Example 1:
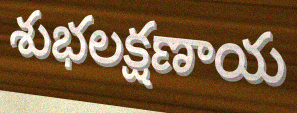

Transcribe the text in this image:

శుభలక్షణాయ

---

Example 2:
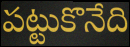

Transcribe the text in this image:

పట్టుకొనేది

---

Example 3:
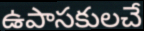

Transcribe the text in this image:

ఉపాసకులచే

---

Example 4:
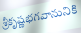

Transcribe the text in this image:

శ్రీకృష్ణభగవానునికి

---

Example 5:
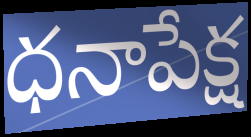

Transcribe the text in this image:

ధనాపేక్ష